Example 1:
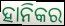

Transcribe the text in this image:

ହାନିକର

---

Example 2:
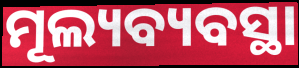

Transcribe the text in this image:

ମୂଲ୍ୟବ୍ୟବସ୍ଥା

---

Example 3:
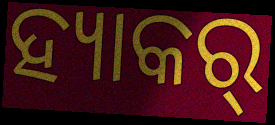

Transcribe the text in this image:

ହ୍ୟାକର୍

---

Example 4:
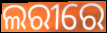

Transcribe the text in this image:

ଲରୀରେ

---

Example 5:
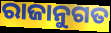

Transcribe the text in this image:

ରାଜାନୁଗତ